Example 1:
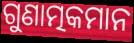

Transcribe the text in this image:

ଗୁଣାତ୍ମକମାନ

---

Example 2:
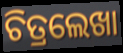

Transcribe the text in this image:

ଚିତ୍ରଲେଖା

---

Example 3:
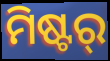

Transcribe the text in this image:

ମିଷ୍ଟର୍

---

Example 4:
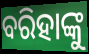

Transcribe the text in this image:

ବରିହାଙ୍କୁ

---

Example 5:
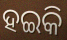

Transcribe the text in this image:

ହଇକି